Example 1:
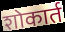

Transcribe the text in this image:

शोकार्त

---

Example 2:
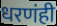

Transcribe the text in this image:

धरणंही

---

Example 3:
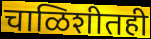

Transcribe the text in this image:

चाळिशीतही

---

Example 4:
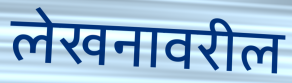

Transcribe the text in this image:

लेखनावरील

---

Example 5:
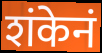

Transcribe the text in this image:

शंकेनं